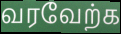
வரவேற்க